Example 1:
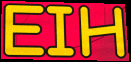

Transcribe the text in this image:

EIH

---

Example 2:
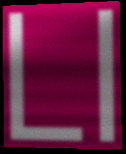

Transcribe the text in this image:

LI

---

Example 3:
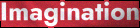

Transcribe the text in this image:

Imagination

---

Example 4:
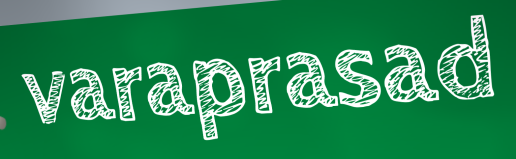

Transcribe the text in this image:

varaprasad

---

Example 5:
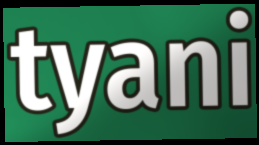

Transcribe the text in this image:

tyani